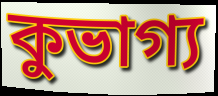
কুভাগ্য